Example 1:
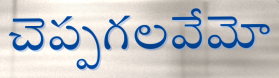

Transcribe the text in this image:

చెప్పగలవేమో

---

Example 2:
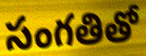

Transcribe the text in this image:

సంగతితో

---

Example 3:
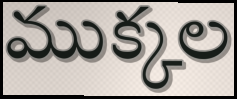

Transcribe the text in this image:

ముక్కల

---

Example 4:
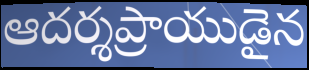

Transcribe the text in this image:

ఆదర్శప్రాయుడైన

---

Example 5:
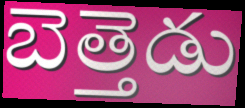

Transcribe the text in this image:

బెత్తెడు